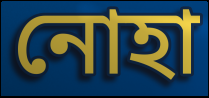
নোহা